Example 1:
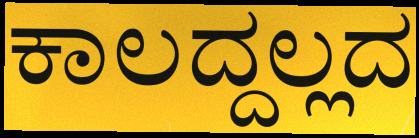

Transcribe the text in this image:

ಕಾಲದ್ದಲ್ಲದ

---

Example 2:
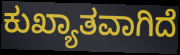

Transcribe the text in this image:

ಕುಖ್ಯಾತವಾಗಿದೆ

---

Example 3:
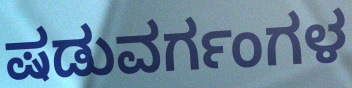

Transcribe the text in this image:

ಷಡುವರ್ಗಂಗಳ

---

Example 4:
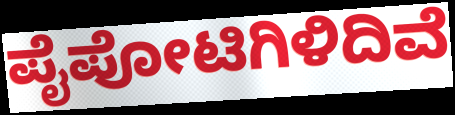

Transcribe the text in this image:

ಪೈಪೋಟಿಗಿಳಿದಿವೆ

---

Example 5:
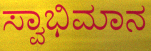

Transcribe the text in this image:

ಸ್ವಾಭಿಮಾನ